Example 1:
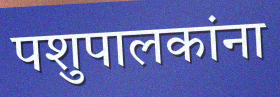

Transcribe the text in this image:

पशुपालकांना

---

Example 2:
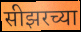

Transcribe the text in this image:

सीझरच्या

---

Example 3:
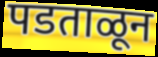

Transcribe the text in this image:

पडताळून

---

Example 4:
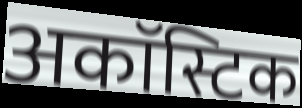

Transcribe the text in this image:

अकॉस्टिक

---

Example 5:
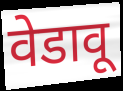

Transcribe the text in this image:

वेडावू